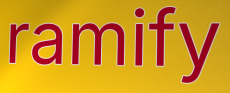
ramify